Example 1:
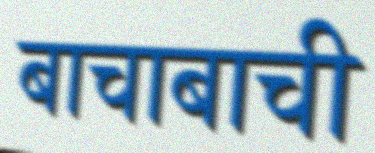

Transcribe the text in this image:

बाचाबाची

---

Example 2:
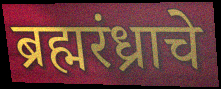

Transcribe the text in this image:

ब्रह्मरंध्राचे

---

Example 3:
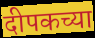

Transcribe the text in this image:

दीपकच्या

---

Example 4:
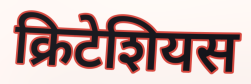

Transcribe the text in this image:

क्रिटेशियस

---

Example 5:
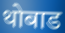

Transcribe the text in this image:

थोबाड